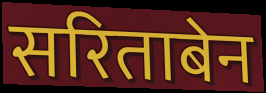
सरिताबेन